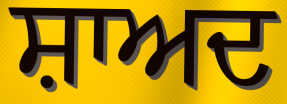
ਸ਼ਾਅਦ